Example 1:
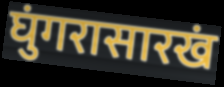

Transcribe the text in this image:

घुंगरासारखं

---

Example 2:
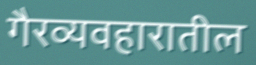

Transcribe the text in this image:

गैरव्यवहारातील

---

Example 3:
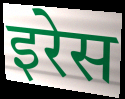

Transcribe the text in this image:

इरेस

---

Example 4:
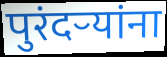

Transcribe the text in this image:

पुरंदऱ्यांना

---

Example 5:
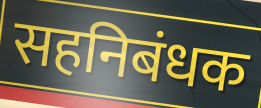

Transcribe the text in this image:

सहनिबंधक